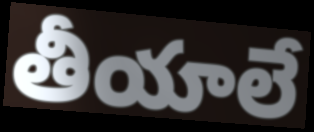
తీయాలే